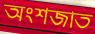
অংশজাত